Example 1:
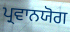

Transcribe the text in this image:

ਪ੍ਰਵਾਨਯੋਗ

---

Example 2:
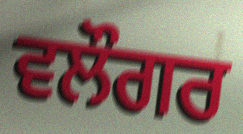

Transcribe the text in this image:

ਵਲੌਗਰ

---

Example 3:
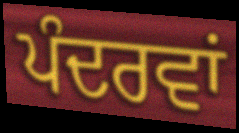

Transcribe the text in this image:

ਪੰਦਰਵਾਂ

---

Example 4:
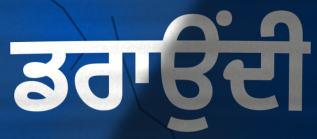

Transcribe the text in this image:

ਡਰਾਉਂਦੀ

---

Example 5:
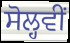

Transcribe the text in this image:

ਸੋਲ੍ਹਵੀਂ